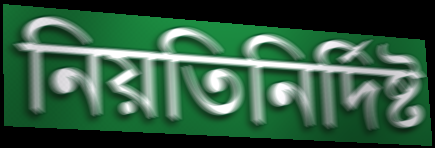
নিয়তিনির্দিষ্ট